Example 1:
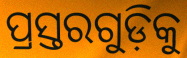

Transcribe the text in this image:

ପ୍ରସ୍ତରଗୁଡ଼ିକୁ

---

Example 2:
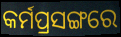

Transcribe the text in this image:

କର୍ମପ୍ରସଙ୍ଗରେ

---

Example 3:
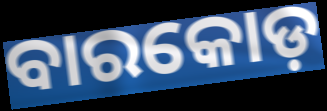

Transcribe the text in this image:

ବାରକୋଡ଼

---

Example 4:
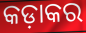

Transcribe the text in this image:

କଡ଼ାକର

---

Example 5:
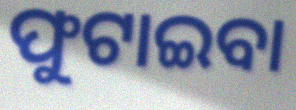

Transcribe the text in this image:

ଫୁଟାଇବା